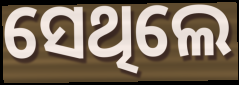
ସେଥିଲେ